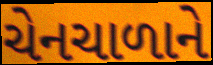
ચેનચાળાને